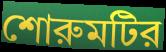
শোরুমটির